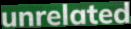
unrelated